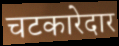
चटकारेदार